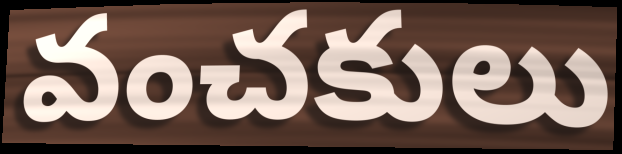
వంచకులు